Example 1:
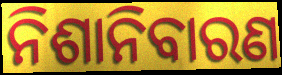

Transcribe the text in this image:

ନିଶାନିବାରଣ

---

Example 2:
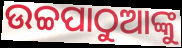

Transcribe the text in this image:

ଉଚ୍ଚପାଠୁଆଙ୍କୁ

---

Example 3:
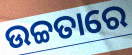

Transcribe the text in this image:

ଉଚ୍ଚତାରେ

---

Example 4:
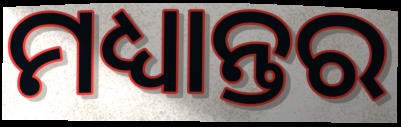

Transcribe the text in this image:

ମଧ୍ୟାନ୍ତର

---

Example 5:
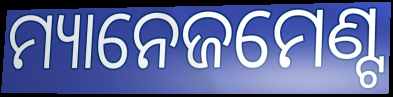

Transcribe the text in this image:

ମ୍ୟାନେଜମେଣ୍ଟ